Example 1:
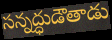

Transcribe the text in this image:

సన్నద్ధుడౌతాడు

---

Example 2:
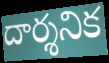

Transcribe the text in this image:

దార్శనిక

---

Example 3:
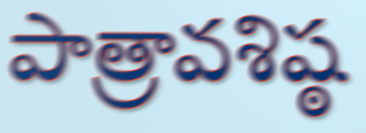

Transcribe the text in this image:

పాత్రావశిష్ఠ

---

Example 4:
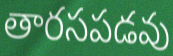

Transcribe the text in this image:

తారసపడవు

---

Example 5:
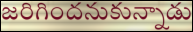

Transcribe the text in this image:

జరిగిందనుకున్నాడు